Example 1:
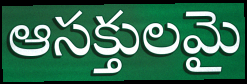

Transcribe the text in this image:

ఆసక్తులమై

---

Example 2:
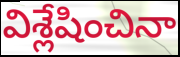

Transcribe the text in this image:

విశ్లేషించినా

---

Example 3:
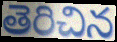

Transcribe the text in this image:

తెరిచిన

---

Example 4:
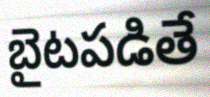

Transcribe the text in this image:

బైటపడితే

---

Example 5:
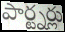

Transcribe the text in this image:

పార్ట్నర్లు